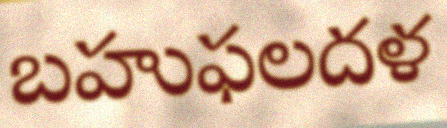
బహుఫలదళ